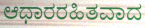
ಆಧಾರರಹಿತವಾದ